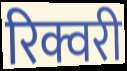
रिक्वरी